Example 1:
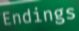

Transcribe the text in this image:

Endings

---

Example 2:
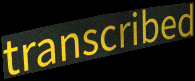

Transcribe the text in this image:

transcribed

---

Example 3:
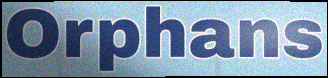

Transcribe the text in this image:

Orphans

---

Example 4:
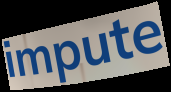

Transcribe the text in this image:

impute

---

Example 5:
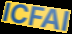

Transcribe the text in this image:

ICFAI